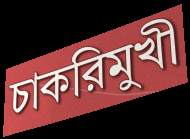
চাকরিমুখী